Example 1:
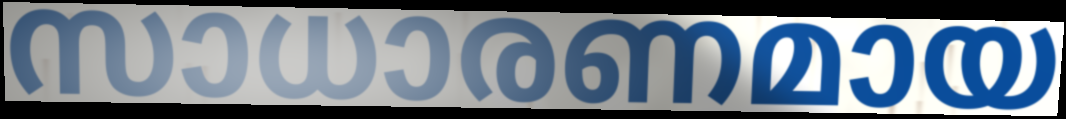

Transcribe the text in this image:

സാധാരണമായ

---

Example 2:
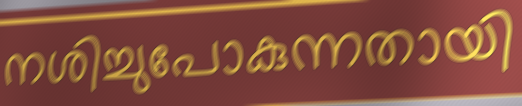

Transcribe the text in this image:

നശിച്ചുപോകുന്നതായി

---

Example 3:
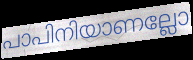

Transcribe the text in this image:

പാപിനിയാണല്ലോ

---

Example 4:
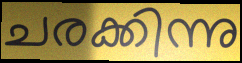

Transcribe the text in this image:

ചരക്കിന്നു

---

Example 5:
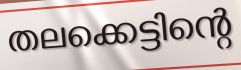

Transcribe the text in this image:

തലക്കെട്ടിന്റെ